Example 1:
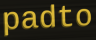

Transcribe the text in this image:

padto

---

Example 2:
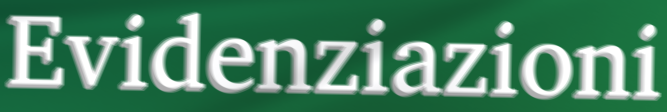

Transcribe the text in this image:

Evidenziazioni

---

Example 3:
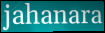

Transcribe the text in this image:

jahanara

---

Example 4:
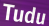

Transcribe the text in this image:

Tudu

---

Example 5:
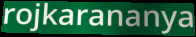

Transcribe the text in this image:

rojkarananya